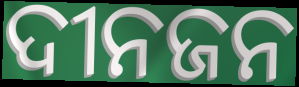
ଦୀନଜନ